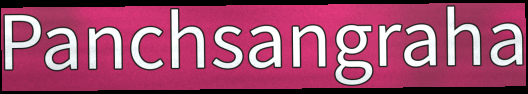
Panchsangraha